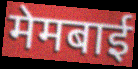
मेमबाई